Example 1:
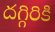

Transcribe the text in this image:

దగ్గిరికి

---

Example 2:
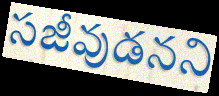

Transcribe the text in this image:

సజీవుడనని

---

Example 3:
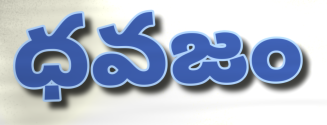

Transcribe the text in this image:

ధవజం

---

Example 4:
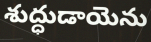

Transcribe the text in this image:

శుద్ధుడాయెను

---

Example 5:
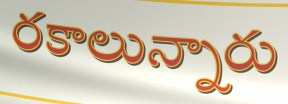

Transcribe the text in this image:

రకాలున్నారు